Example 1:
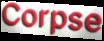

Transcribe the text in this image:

Corpse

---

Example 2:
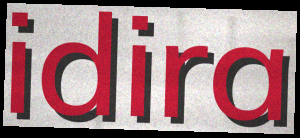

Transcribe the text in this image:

idira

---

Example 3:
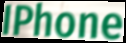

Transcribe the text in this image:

IPhone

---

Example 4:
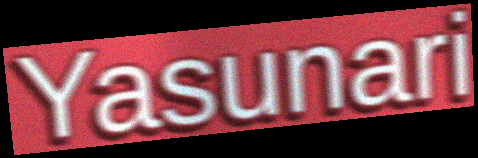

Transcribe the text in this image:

Yasunari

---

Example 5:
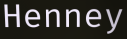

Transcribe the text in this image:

Henney